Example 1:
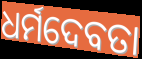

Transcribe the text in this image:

ଧର୍ମଦେବତା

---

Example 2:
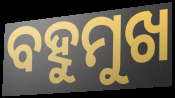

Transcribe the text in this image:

ବହୁମୁଖ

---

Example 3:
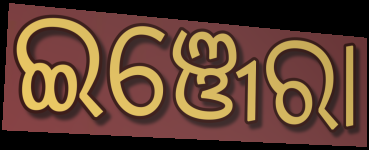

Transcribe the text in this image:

ଇଞ୍ଜେରା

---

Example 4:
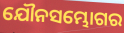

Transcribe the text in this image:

ଯୌନସମ୍ଭୋଗର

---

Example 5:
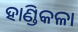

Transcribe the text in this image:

ହାଣ୍ଡିକଳା